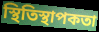
স্থিতিস্থাপকতা